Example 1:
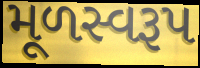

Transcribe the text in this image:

મૂળસ્વરૂપ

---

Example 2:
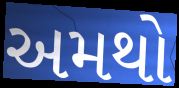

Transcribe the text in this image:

અમથો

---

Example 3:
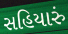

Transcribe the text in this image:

સહિયારું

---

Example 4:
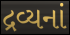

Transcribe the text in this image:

દ્રવ્યનાં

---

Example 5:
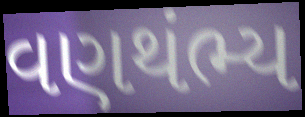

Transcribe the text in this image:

વણથંભ્ય